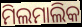
ମିଲମାଲିକ